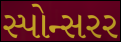
સ્પોન્સરર